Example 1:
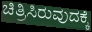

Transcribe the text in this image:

ಚಿತ್ರಿಸಿರುವುದಕ್ಕೆ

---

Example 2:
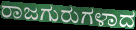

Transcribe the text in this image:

ರಾಜಗುರುಗಳಾದ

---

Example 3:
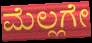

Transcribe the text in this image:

ಮೆಲ್ಲಗೇ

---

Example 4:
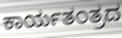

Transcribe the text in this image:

ಕಾರ್ಯತಂತ್ರದ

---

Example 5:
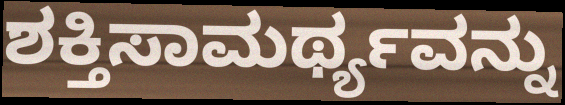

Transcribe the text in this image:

ಶಕ್ತಿಸಾಮರ್ಥ್ಯವನ್ನು